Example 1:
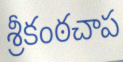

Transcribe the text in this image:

శ్రీకంఠచాప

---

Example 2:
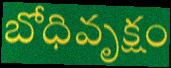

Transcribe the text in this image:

బోధివృక్షం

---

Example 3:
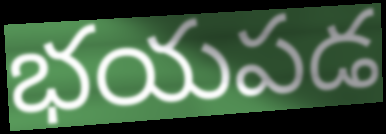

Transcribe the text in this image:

భయపడ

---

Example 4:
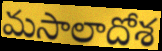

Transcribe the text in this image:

మసాలాదోశ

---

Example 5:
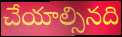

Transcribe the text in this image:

చేయాల్సినది